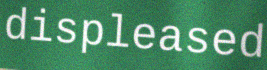
displeased